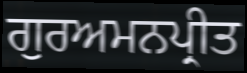
ਗੁਰਅਮਨਪ੍ਰੀਤ